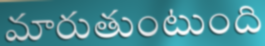
మారుతుంటుంది